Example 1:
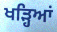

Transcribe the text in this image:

ਖੜ੍ਹਿਆਂ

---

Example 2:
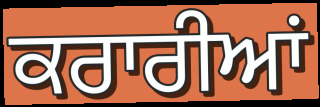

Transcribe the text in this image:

ਕਰਾਰੀਆਂ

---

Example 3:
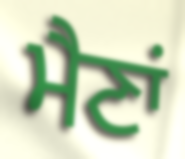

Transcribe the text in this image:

ਮੈਣਾਂ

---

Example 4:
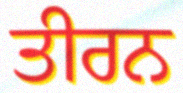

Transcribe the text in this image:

ਤੀਰਨ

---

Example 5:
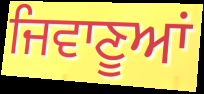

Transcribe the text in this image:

ਜਿਵਾਣੂਆਂ